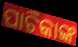
ପାଚିକାଙ୍କ